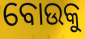
ବୋଉକୁ